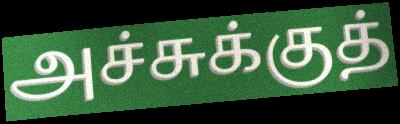
அச்சுக்குத்